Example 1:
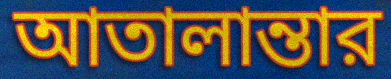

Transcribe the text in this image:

আতালান্তার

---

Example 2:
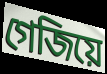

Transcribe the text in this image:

গেজিয়ে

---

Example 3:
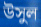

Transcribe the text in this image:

উসুল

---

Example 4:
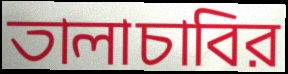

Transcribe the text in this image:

তালাচাবির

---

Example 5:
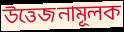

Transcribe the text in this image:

উত্তেজনামূলক